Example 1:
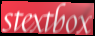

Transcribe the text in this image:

stextbox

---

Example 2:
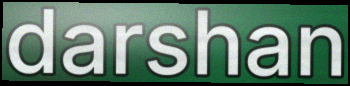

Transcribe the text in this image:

darshan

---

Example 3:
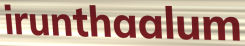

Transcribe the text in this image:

irunthaalum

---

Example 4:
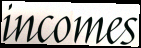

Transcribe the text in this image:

incomes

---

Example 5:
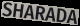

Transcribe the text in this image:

SHARADA